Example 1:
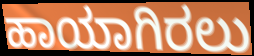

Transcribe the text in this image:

ಹಾಯಾಗಿರಲು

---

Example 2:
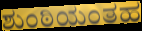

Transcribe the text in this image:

ಶುಂಠಿಯಂತಹ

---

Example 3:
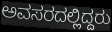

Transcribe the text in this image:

ಅವಸರದಲ್ಲಿದ್ದರು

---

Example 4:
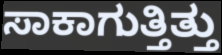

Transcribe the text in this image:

ಸಾಕಾಗುತ್ತಿತ್ತು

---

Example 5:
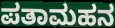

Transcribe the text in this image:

ಪತಾಮಹನ